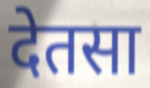
देतसा